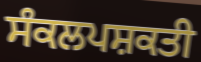
ਸੰਕਲਪਸ਼ਕਤੀ